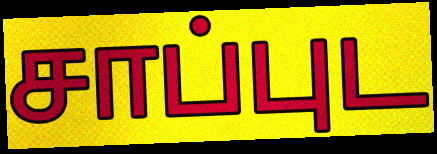
சாப்புட